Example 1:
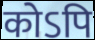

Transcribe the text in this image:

कोऽपि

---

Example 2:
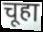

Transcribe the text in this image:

चूहा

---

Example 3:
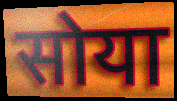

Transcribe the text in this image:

सोया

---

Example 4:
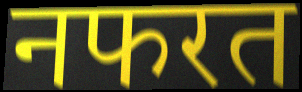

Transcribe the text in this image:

नफरत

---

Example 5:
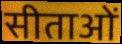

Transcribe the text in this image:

सीताओं